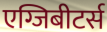
एग्जिबीटर्स